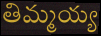
తిమ్మయ్య